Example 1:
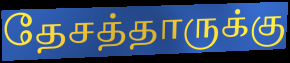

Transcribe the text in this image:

தேசத்தாருக்கு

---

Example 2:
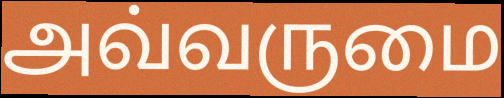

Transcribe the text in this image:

அவ்வருமை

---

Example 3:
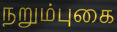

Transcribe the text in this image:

நறும்புகை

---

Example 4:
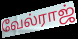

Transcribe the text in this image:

வேல்ராஜ்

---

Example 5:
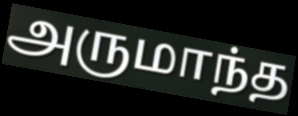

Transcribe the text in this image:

அருமாந்த